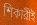
শিকারীই